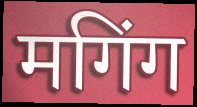
मगिंग